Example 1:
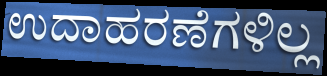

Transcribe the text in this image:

ಉದಾಹರಣೆಗಳಿಲ್ಲ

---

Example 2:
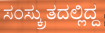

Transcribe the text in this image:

ಸಂಸ್ಕ್ರುತದಲ್ಲಿದ್ದ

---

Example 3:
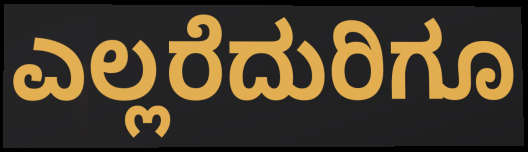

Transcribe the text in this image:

ಎಲ್ಲರೆದುರಿಗೂ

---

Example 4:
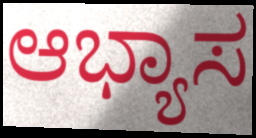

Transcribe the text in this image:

ಆಭ್ಯಾಸ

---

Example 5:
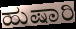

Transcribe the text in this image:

ಹುಷಾರಿ